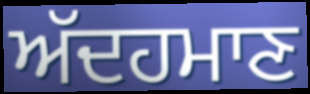
ਅੱਦਹਮਾਣ